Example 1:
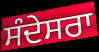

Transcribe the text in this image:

ਸੰਦੇਸਰਾ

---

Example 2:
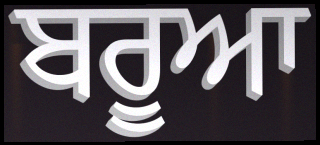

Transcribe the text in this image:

ਬਰੂਆ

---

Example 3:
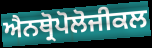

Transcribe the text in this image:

ਐਨਥ੍ਰੋਪੋਲੋਜੀਕਲ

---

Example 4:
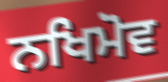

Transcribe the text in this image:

ਨਖਿਮੋਵ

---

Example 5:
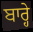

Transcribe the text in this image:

ਬਾਰ੍ਹੇ